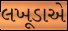
લખૂડાએ